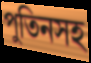
পুতিনসহ